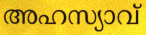
അഹസ്യാവ്